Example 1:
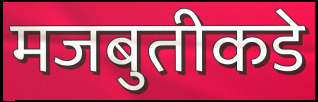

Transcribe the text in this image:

मजबुतीकडे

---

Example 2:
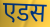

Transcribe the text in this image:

एडस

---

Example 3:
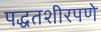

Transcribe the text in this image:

पद्धतशीरपणे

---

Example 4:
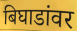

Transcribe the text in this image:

बिघाडांवर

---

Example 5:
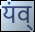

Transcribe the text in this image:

यंव्